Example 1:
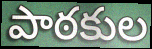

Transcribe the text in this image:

పాఠకుల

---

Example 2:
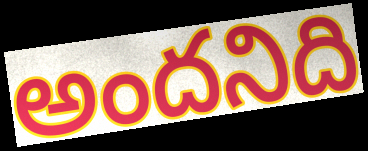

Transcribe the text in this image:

అందనిది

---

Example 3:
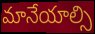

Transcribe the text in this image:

మానేయాల్సి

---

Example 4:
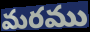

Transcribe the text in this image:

మరము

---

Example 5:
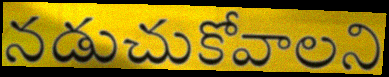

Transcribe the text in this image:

నడుచుకోవాలని